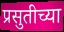
प्रसुतीच्या